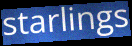
starlings